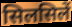
सिलसिलें